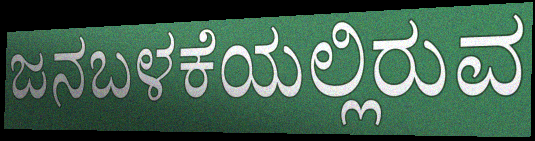
ಜನಬಳಕೆಯಲ್ಲಿರುವ